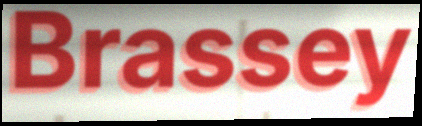
Brassey